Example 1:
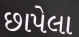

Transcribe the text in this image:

છાપેલા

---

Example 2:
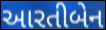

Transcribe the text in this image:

આરતીબેન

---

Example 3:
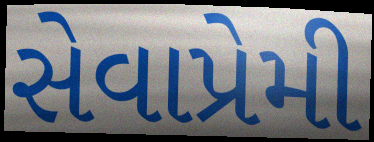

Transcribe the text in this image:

સેવાપ્રેમી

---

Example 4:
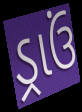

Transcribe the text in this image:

ડ્રાઉં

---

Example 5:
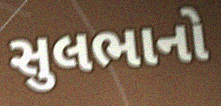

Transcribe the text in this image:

સુલભાનો